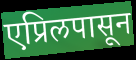
एप्रिलपासून